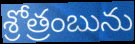
శ్రోత్రంబును